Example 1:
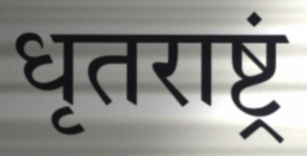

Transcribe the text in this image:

धृतराष्ट्रं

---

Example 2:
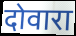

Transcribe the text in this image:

दोवारा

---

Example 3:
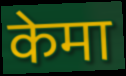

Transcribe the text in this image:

केमा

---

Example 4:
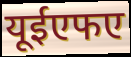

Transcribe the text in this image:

यूईएफए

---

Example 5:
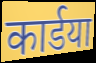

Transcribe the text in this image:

कार्डया